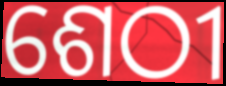
ଶେଠୀ